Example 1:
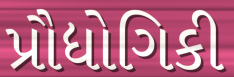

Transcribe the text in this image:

પ્રૌદ્યોગિકી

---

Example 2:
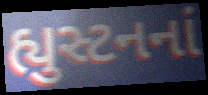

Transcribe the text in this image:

હ્યુસ્ટનનાં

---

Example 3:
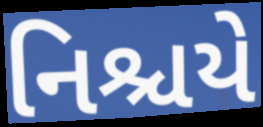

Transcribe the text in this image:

નિશ્ચયે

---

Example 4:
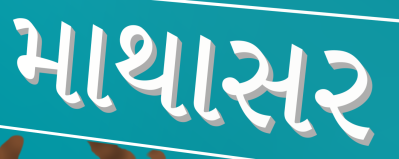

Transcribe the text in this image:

માથાસર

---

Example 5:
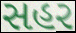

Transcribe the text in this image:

સહર